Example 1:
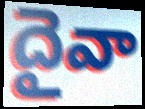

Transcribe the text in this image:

దైవా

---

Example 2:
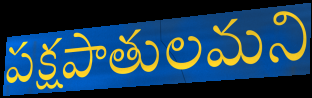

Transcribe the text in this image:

పక్షపాతులమని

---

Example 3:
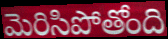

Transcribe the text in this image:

మెరిసిపోతోంది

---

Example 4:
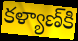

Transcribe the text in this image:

కళ్యాణ్‍కి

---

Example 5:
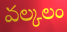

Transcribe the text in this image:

వల్కలం